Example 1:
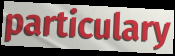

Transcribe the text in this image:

particulary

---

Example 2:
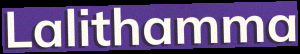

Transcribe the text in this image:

Lalithamma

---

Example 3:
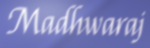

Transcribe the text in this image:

Madhwaraj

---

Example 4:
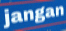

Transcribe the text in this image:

jangan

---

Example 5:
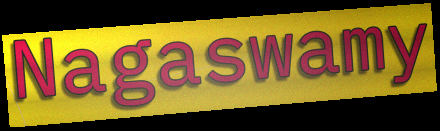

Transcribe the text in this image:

Nagaswamy